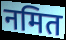
नमित